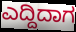
ಎದ್ದಿದಾಗ